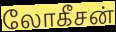
லோகீசன்